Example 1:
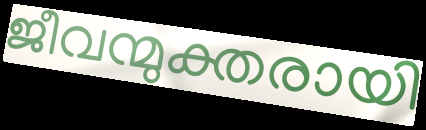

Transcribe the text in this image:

ജീവന്മുക്തരായി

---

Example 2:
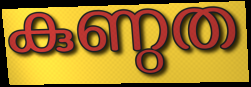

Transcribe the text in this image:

കുണ്ഠത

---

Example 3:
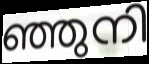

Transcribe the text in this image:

ഞ്ഞുനി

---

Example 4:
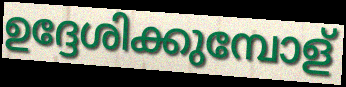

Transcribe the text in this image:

ഉദ്ദേശിക്കുമ്പോള്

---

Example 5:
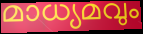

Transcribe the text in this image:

മാധ്യമവും